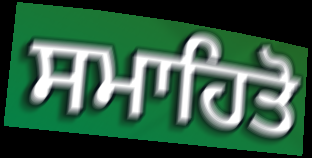
ਸਮਾਹਿਤੋ